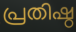
പ്രതിഷ്ഠ